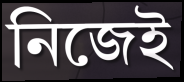
নিজেই